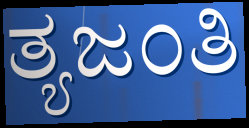
ತ್ಯಜಂತಿ